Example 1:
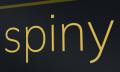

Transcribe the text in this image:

spiny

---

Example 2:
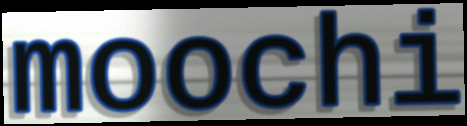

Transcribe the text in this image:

moochi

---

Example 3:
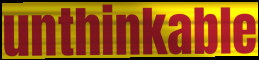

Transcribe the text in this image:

unthinkable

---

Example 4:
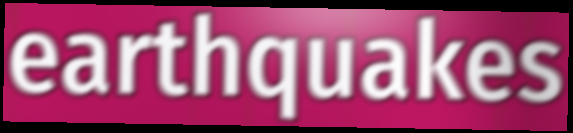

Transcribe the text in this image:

earthquakes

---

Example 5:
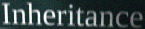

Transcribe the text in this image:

Inheritance